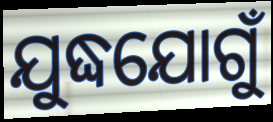
ଯୁଦ୍ଧଯୋଗୁଁ